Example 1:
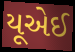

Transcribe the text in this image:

યૂએઈ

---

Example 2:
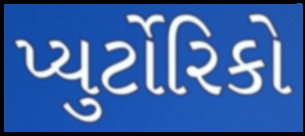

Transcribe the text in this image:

પ્યુર્ટોરિકો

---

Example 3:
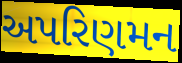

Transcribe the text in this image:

અપરિણમન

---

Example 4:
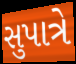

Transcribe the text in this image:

સુપાત્રે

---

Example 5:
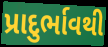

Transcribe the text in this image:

પ્રાદુર્ભાવથી